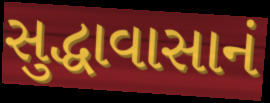
સુદ્ધાવાસાનં